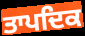
ਤਾਪਦਿਕ